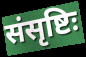
संसृष्टिः